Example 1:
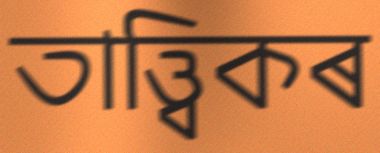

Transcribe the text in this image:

তাত্ত্বিকৰ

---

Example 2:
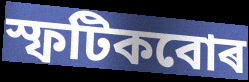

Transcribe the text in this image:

স্ফটিকবোৰ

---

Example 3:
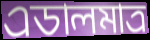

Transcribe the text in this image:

এডালমাত্ৰ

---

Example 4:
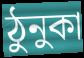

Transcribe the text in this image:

ঠুনুকা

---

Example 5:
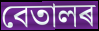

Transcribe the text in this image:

বেতালৰ